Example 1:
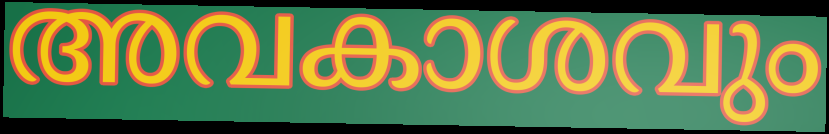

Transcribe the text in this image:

അവകാശവും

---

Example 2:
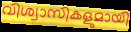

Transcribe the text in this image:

വിശ്വാസികളുമായി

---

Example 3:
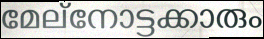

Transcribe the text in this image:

മേല്നോട്ടക്കാരും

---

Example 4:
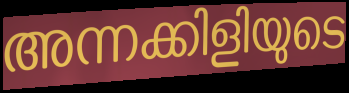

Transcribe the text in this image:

അന്നക്കിളിയുടെ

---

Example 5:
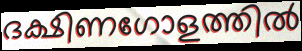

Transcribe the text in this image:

ദക്ഷിണഗോളത്തിൽ